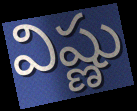
విష్ణు